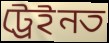
ট্ৰেইনত